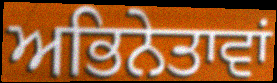
ਅਭਿਨੇਤਾਵਾਂ